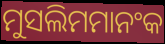
ମୁସଲିମମାନଂକ